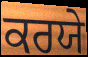
ਕਰਯੇ